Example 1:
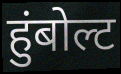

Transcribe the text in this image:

हुंबोल्ट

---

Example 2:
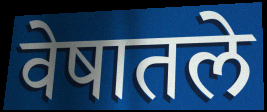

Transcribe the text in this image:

वेषातले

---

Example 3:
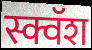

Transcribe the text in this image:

स्क्वॅश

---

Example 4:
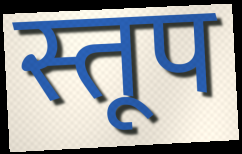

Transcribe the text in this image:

स्तूप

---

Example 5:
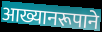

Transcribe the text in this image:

आख्यानरूपाने